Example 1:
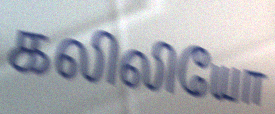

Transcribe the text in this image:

கலிலியோ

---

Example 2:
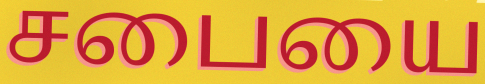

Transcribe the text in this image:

சபையை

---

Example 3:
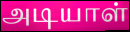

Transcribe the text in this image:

அடியாள்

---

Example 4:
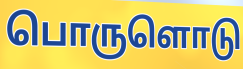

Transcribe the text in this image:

பொருளொடு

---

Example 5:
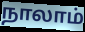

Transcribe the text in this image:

நாலாம்